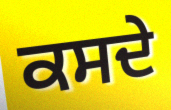
ਕਸਦੇ